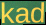
kad